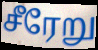
சீரேறு